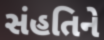
સંહતિને